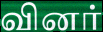
வினர்